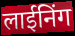
लाईनिंग